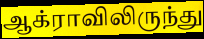
ஆக்ராவிலிருந்து